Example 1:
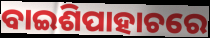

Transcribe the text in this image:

ବାଇଶିପାହାଚରେ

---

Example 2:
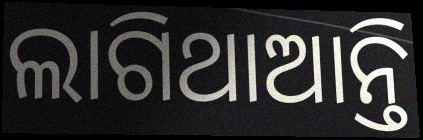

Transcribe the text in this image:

ଲାଗିଥାଆନ୍ତି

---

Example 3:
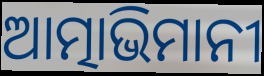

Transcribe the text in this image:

ଆତ୍ମାଭିମାନୀ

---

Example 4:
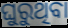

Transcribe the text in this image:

ଘୁରୁଥିବା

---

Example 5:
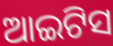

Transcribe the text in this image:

ଆଇଟିସ